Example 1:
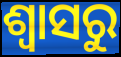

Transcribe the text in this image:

ଶ୍ୱାସରୁ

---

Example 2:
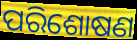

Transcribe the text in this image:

ପରିଶୋଷଣ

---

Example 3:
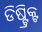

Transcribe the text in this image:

ଡିଷ୍ଟ୍ରିକ୍ଟ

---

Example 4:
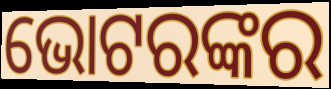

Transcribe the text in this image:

ଭୋଟରଙ୍କର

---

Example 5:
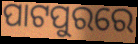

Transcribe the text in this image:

ପାଟପୁରରେ